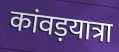
कांवड़यात्रा